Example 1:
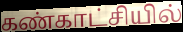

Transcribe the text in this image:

கண்காட்சியில்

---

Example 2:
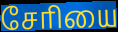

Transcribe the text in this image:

சேரியை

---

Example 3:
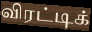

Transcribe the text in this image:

விரட்டிக்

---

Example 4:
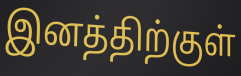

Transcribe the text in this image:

இனத்திற்குள்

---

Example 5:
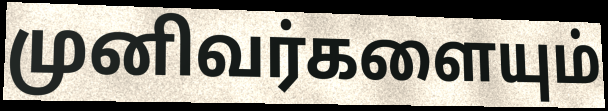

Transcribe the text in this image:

முனிவர்களையும்